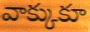
వాక్కుకూ